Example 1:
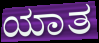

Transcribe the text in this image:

ಯಾತ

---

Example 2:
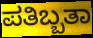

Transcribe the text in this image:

ಪತಿಬ್ಬತಾ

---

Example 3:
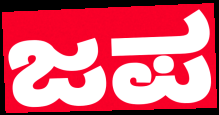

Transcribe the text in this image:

ಜಪ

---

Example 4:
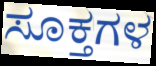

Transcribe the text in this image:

ಸೂಕ್ತಗಳ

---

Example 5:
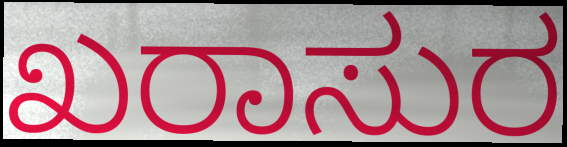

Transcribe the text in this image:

ಖರಾಸುರ